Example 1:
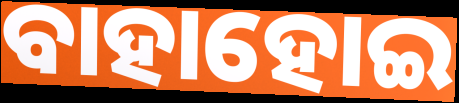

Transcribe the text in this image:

ବାହାହୋଇ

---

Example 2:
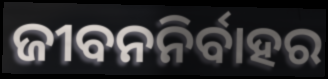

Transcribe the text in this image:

ଜୀବନନିର୍ବାହର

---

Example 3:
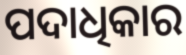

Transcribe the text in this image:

ପଦାଧିକାର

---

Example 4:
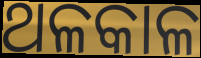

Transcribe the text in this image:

ଥଳକାଳ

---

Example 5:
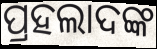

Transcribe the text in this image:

ପ୍ରହଲାଦଙ୍କ